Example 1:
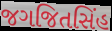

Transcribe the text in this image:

જગજિતસિંહ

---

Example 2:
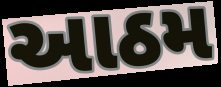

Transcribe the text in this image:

આઠમ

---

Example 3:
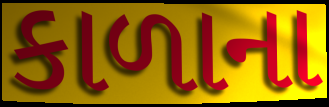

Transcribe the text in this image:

કાળાના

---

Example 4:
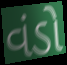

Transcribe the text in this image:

વંડો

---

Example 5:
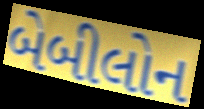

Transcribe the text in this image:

બેબીલોન